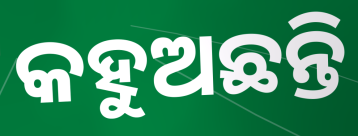
କହୁଅଛନ୍ତି